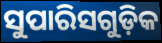
ସୁପାରିସଗୁଡ଼ିକ